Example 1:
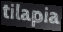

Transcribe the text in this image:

tilapia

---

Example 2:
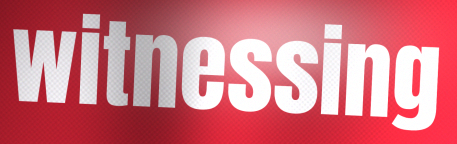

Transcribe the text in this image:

witnessing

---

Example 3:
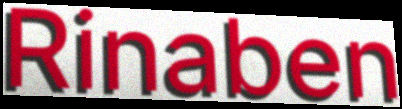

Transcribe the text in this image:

Rinaben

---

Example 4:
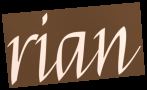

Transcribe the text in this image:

rian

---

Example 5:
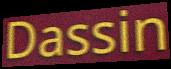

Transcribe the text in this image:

Dassin